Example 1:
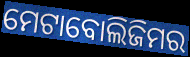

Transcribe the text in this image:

ମେଟାବୋଲିଜିମର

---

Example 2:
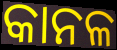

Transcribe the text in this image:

କାନଳ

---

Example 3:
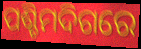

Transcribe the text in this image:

ପଶ୍ଚିମଦିଗରେ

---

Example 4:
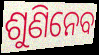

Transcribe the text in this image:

ଶୁଣିନେବ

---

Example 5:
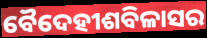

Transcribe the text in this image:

ବୈଦେହୀଶବିଳାସର